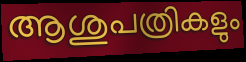
ആശുപത്രികളും